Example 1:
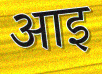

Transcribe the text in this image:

आइ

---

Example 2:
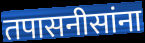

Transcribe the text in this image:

तपासनीसांना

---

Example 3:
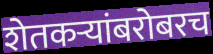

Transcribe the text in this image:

शेतकऱ्यांबरोबरच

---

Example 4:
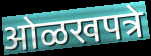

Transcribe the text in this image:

ओळखपत्रे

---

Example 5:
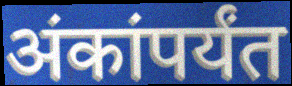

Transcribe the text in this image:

अंकांपर्यंत